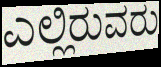
ಎಲ್ಲಿರುವರು